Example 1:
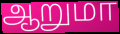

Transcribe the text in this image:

ஆறுமா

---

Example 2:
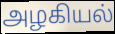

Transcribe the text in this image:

அழகியல்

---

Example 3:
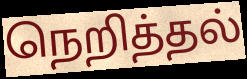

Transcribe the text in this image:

நெறித்தல்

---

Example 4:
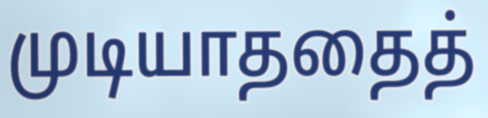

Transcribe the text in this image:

முடியாததைத்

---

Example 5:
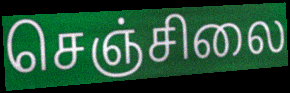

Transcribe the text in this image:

செஞ்சிலை